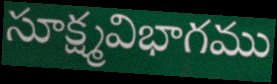
సూక్ష్మవిభాగము